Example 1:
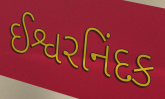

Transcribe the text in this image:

ઈશ્વરનિંદક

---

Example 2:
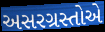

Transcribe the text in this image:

અસરગ્રસ્તોએ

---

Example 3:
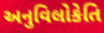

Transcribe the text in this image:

અનુવિલોકેતિ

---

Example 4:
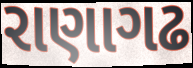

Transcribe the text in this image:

રાણાગઢ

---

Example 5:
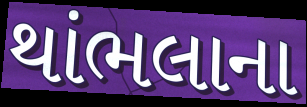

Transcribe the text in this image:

થાંભલાના